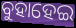
ବୁହାହେଇ